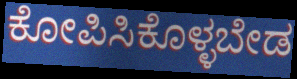
ಕೋಪಿಸಿಕೊಳ್ಳಬೇಡ